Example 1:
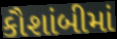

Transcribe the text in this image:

કૌશાંબીમાં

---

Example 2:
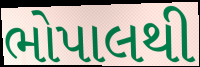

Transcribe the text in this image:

ભોપાલથી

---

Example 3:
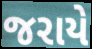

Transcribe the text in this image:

જરાયે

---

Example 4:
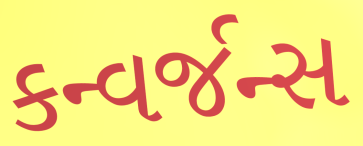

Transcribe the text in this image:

કન્વર્જન્સ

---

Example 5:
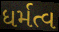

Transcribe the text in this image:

ધર્મત્વ